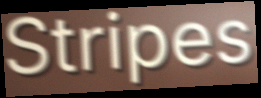
Stripes